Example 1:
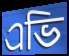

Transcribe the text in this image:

এভি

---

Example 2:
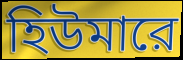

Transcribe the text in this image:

হিউমারে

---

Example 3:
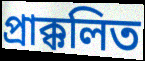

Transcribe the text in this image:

প্রাক্কলিত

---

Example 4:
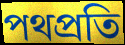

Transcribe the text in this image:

পথপ্রতি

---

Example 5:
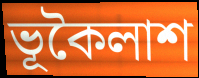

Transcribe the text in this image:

ভূকৈলাশ